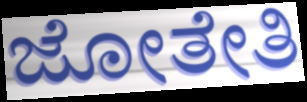
ಜೋತೇತಿ